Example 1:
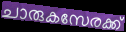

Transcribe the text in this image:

ചാരുകസേരക്ക്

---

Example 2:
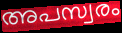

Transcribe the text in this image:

അപസ്വരം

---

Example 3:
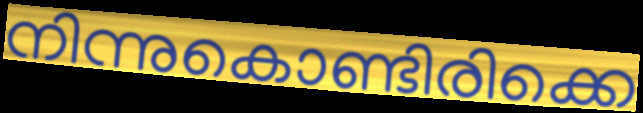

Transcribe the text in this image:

നിന്നുകൊണ്ടിരിക്കെ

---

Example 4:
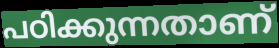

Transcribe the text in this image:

പഠിക്കുന്നതാണ്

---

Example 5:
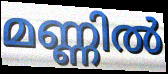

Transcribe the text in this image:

മണ്ണിൽ